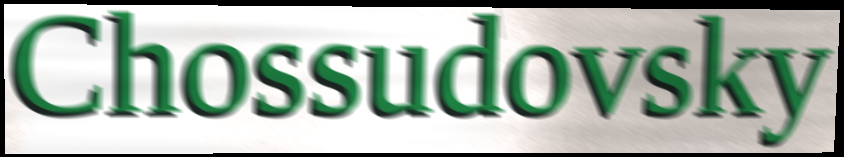
Chossudovsky